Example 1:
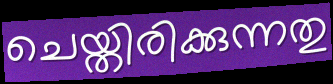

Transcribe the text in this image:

ചെയ്തിരിക്കുന്നതു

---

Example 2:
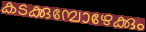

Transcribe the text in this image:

കടക്കുമ്പോഴേക്കും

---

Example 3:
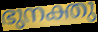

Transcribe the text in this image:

ഭുനക്തു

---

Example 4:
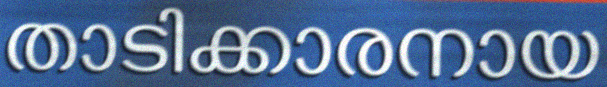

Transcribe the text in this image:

താടിക്കാരനായ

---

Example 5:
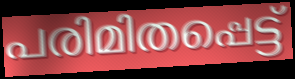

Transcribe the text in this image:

പരിമിതപ്പെട്ട്